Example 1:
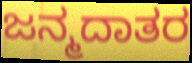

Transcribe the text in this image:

ಜನ್ಮದಾತರ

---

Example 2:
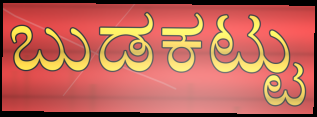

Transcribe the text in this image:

ಬುಡಕಟ್ಟು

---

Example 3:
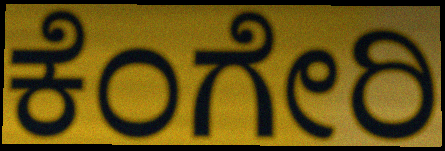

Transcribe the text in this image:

ಕೆಂಗೇರಿ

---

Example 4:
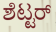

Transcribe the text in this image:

ಶೆಟ್ಟರ್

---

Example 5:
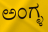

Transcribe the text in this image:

ಅಂಗ್ಳ